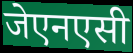
जेएनएसी